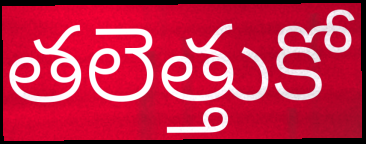
తలెత్తుకో